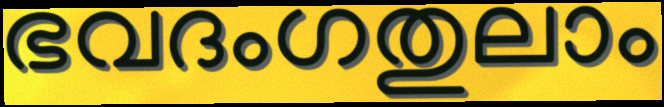
ഭവദംഗതുലാം